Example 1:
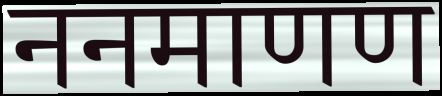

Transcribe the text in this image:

ननमाणण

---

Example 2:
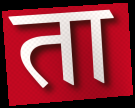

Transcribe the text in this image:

ता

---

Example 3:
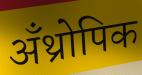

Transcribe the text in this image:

अँथ्रोपिक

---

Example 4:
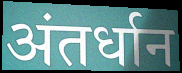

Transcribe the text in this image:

अंतर्धान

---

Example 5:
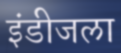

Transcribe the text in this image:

इंडीजला